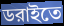
ডরাইতে